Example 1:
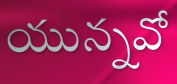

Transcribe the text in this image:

యున్నవో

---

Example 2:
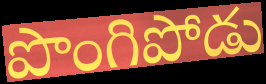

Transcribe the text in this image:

పొంగిపోడు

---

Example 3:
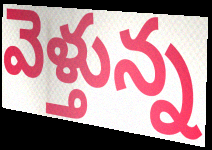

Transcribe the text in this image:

వెళ్తున్న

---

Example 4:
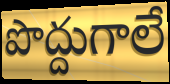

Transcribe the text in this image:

పొద్దుగాలే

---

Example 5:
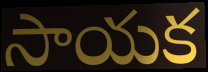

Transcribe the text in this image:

సాయక